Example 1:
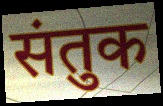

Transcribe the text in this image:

संतुक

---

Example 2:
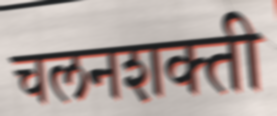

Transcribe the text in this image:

चलनशक्ती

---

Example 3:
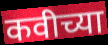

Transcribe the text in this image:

कवीच्या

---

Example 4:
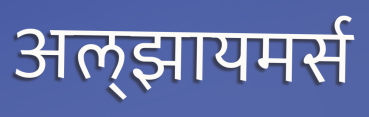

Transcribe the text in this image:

अल्झायमर्स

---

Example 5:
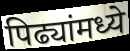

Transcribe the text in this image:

पिढ्यांमध्ये